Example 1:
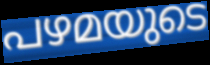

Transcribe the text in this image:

പഴമയുടെ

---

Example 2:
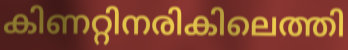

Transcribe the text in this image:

കിണറ്റിനരികിലെത്തി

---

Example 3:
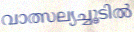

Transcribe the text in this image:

വാത്സല്യച്ചൂടിൽ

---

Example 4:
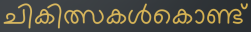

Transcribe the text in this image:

ചികിത്സകൾകൊണ്ട്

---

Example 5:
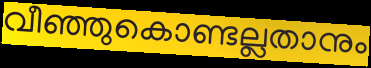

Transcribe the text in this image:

വീഞ്ഞുകൊണ്ടല്ലതാനും